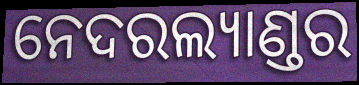
ନେଦରଲ୍ୟାଣ୍ଡର